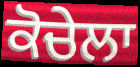
ਕੋਚੇਲਾ